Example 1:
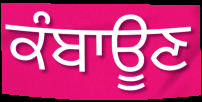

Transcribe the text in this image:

ਕੰਬਾਊਣ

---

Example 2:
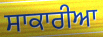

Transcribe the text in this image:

ਸਾਕਾਰੀਆ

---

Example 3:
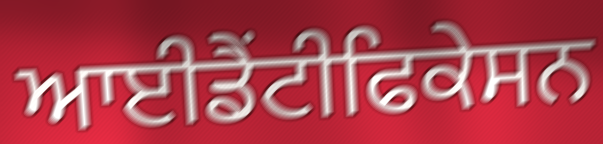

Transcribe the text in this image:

ਆਈਡੈਂਟੀਫਿਕੇਸਨ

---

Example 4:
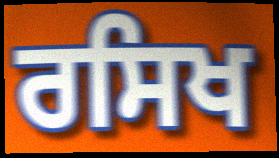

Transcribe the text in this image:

ਰਸਿਖ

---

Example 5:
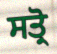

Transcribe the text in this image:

ਸਤ੍ਰੋ